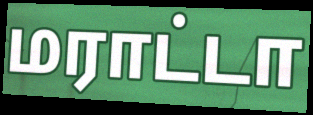
மராட்டா